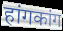
हांगकांग